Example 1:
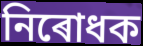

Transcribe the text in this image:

নিৰোধক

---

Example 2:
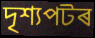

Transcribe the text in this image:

দৃশ্যপটৰ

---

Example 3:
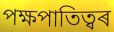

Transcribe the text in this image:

পক্ষপাতিত্বৰ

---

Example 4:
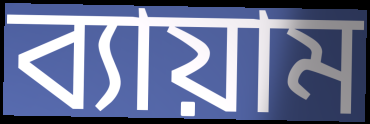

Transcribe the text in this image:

ব্যায়াম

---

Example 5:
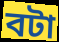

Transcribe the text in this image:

বটা